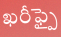
ఖరీఫ్పై